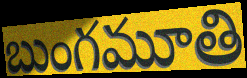
బుంగమూతి